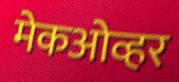
मेकओव्हर